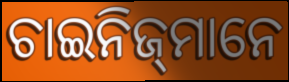
ଚାଇନିଜ୍‍ମାନେ